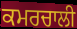
ਕਮਰਚਾਲੀ